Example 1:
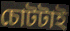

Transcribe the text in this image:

চোটটাই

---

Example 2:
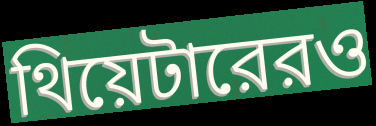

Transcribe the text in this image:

থিয়েটারেরও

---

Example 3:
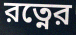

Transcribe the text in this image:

রত্নের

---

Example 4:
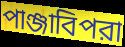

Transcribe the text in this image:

পাঞ্জাবিপরা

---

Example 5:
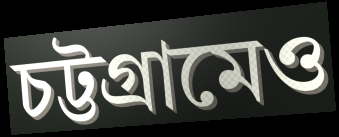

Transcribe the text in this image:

চট্টগ্রামেও